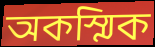
অকস্মিক